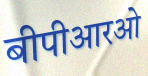
बीपीआरओ